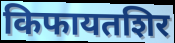
किफायतशिर